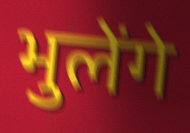
भुलेंगे